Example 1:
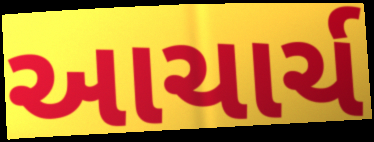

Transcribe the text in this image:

આચાર્ચ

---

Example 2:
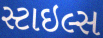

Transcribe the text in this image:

સ્ટાઇલ્સ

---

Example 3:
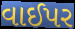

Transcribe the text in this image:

વાઈપર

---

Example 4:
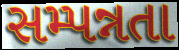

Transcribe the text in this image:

સમ્પન્નતા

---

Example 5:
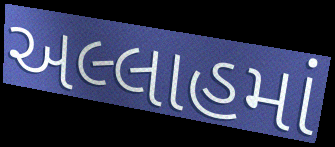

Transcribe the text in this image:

અલ્લાહમાં